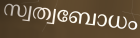
സ്വത്വബോധം